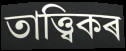
তাত্ত্বিকৰ